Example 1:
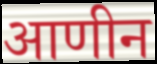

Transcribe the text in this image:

आणीन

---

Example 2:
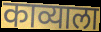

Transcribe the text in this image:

काव्याला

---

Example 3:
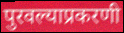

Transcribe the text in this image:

पुरवल्याप्रकरणी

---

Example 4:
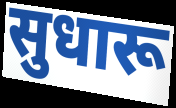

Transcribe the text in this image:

सुधारू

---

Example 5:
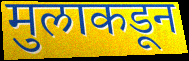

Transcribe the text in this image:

मुलाकडून